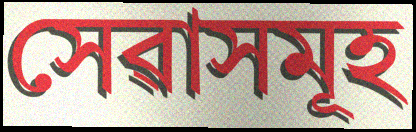
সেৱাসমূহ